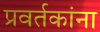
प्रवर्तकांना